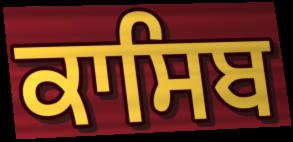
ਕਾਸਿਬ